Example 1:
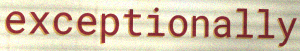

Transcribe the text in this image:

exceptionally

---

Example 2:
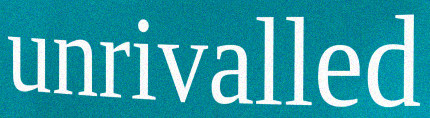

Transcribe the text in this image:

unrivalled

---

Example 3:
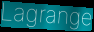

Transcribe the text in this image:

Lagrange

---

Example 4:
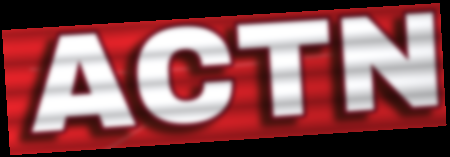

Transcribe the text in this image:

ACTN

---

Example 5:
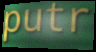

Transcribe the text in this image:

putr